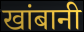
खांबानी